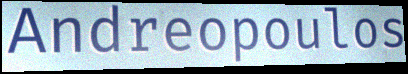
Andreopoulos